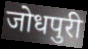
जोधपुरी